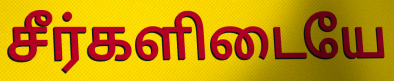
சீர்களிடையே